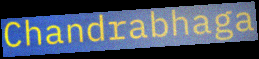
Chandrabhaga